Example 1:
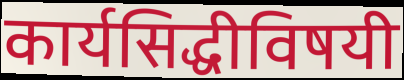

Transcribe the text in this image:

कार्यसिद्धीविषयी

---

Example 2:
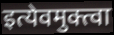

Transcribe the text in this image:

इत्येवमुक्त्वा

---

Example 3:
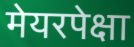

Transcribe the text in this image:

मेयरपेक्षा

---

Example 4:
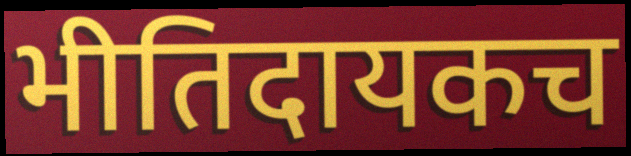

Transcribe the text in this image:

भीतिदायकच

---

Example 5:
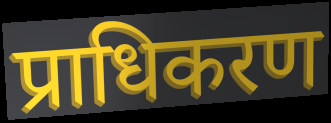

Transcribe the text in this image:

प्राधिकरण